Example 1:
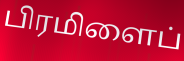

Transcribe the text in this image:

பிரமிளைப்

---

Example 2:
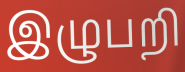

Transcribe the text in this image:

இழுபறி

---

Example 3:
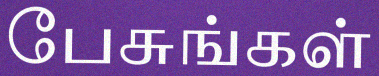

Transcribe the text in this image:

பேசுங்கள்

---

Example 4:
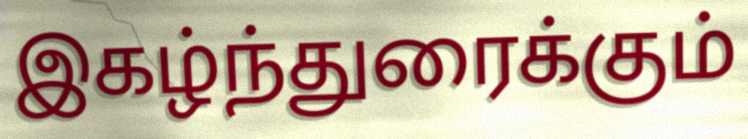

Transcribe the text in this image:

இகழ்ந்துரைக்கும்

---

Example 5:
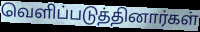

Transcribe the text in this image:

வெளிப்படுத்தினார்கள்